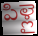
పిళ్లై